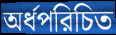
অর্ধপরিচিত